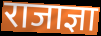
राजाज्ञा